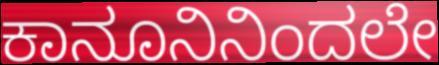
ಕಾನೂನಿನಿಂದಲೇ